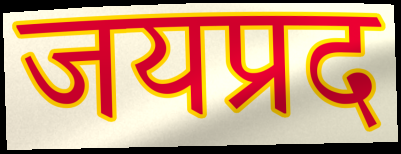
जयप्रद